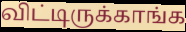
விட்டிருக்காங்க